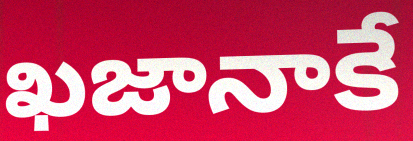
ఖజానాకే